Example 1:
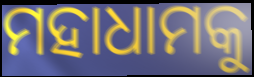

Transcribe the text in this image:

ମହାଧାମକୁ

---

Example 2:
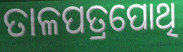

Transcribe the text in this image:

ତାଳପତ୍ରପୋଥି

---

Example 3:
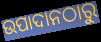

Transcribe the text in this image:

ଉପାଦାନଠାରୁ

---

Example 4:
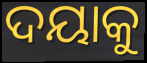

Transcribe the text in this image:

ଦୟାକୁ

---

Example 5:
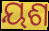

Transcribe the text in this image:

ୟଶ